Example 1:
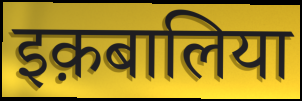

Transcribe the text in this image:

इक़बालिया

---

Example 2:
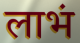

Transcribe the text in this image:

लाभं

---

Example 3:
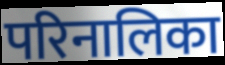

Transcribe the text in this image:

परिनालिका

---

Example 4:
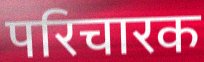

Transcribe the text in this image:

परिचारक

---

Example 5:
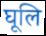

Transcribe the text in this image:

घूलि